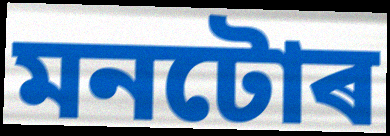
মনটোৰ